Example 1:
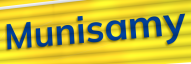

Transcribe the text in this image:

Munisamy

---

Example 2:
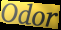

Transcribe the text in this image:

Odor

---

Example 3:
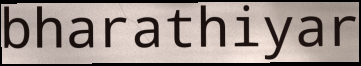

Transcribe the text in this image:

bharathiyar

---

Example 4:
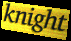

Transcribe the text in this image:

knight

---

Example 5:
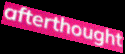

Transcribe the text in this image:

afterthought